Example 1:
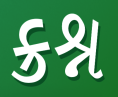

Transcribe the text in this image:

ક્રશ્ન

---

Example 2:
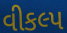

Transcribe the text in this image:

વીકલ્પ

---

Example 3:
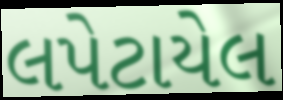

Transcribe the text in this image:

લપેટાયેલ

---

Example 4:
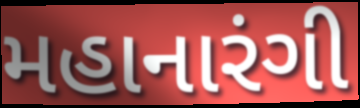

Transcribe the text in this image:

મહાનારંગી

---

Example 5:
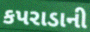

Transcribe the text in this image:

કપરાડાની